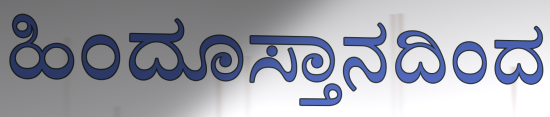
ಹಿಂದೂಸ್ತಾನದಿಂದ